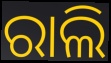
ରାଲି